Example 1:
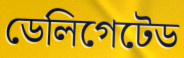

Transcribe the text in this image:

ডেলিগেটেড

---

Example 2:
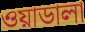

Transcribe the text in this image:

ওয়াডালা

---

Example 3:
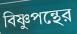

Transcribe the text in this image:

বিষ্ণুপন্থের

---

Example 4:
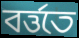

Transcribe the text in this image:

বর্ত্ততে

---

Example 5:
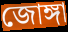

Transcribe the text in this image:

জোঙ্গা